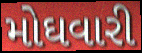
મોઘવારી